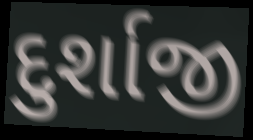
દુર્શાજી